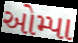
ઓમ્પા